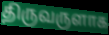
திருவருளாக